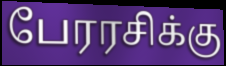
பேரரசிக்கு